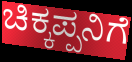
ಚಿಕ್ಕಪ್ಪನಿಗೆ